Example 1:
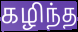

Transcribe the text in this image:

கழிந்த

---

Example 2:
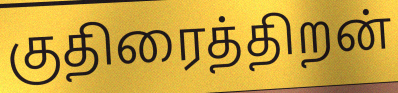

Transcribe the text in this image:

குதிரைத்திறன்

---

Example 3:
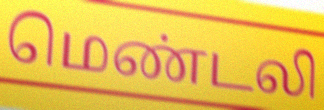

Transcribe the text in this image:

மெண்டலி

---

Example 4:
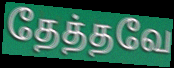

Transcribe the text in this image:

தேத்தவே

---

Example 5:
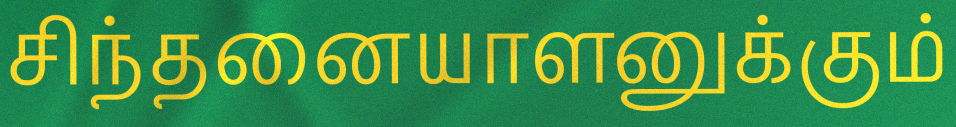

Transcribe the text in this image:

சிந்தனையாளனுக்கும்